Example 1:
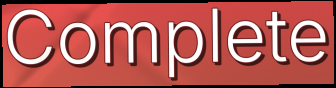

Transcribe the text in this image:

Complete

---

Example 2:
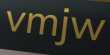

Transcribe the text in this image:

vmjw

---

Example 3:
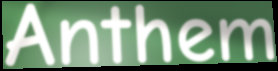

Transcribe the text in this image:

Anthem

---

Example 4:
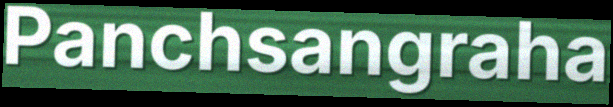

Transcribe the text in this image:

Panchsangraha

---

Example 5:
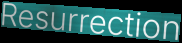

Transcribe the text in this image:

Resurrection